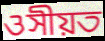
ওসীয়ত